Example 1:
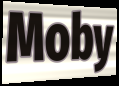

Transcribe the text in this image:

Moby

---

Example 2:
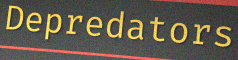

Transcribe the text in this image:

Depredators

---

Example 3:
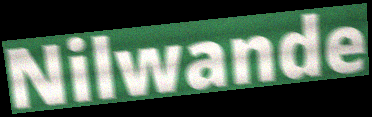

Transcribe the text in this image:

Nilwande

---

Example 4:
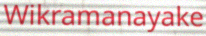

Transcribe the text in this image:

Wikramanayake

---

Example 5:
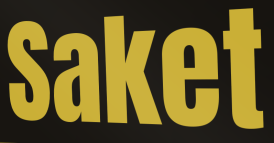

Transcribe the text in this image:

Saket